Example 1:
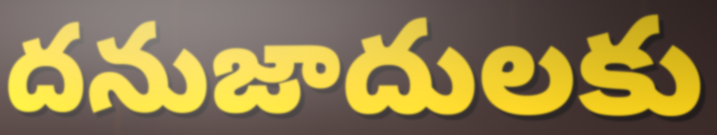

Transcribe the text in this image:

దనుజాదులకు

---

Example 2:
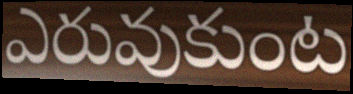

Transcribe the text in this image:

ఎరువుకుంట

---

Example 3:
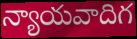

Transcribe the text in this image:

న్యాయవాదిగ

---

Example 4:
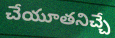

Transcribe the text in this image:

చేయూతనిచ్చే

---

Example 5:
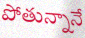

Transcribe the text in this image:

పోతున్నానే